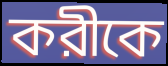
করীকে